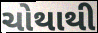
ચોથાથી